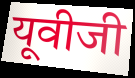
यूवीजी